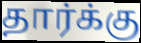
தார்க்கு